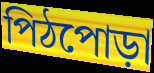
পিঠপোড়া